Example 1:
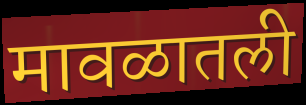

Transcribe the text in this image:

मावळातली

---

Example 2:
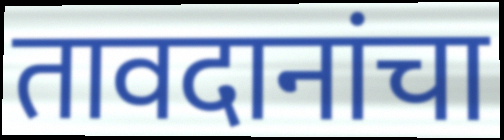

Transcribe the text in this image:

तावदानांचा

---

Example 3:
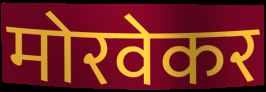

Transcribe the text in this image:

मोरवेकर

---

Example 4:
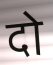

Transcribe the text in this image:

दो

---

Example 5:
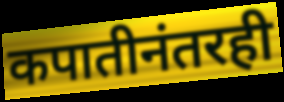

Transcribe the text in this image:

कपातीनंतरही